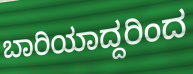
ಬಾರಿಯಾದ್ದರಿಂದ